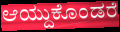
ಆಯ್ದುಕೊಂಡರೆ